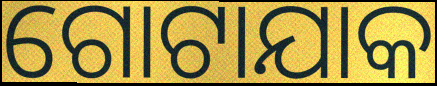
ଗୋଟାଯାକ